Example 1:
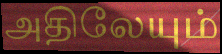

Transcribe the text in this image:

அதிலேயும்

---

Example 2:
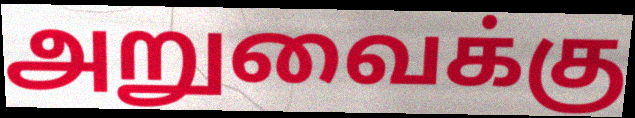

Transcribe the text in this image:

அறுவைக்கு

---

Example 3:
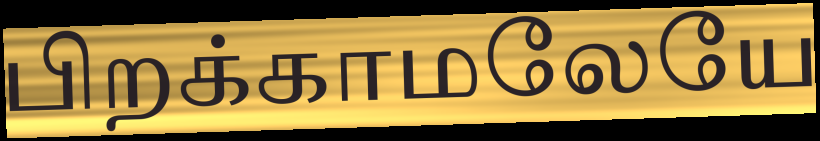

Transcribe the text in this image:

பிறக்காமலேயே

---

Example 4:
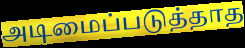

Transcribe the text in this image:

அடிமைப்படுத்தாத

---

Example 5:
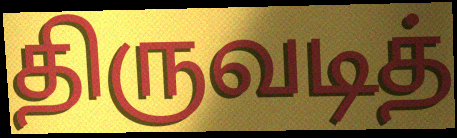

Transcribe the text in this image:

திருவடித்